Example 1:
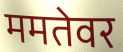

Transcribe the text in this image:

ममतेवर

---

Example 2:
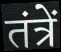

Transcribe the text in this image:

तंत्रें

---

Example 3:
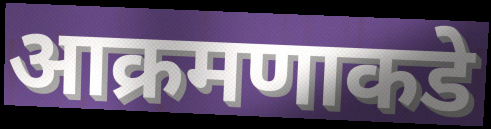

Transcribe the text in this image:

आक्रमणाकडे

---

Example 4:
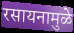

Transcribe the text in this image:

रसायनामुळे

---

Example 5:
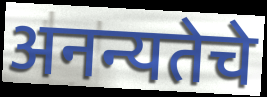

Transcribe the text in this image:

अनन्यतेचे